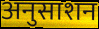
अनुसाशन